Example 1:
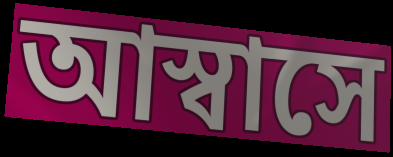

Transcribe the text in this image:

আস্বাসে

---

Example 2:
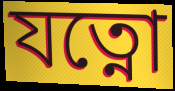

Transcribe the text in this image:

যত্নো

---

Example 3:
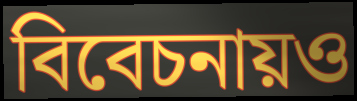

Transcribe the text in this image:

বিবেচনায়ও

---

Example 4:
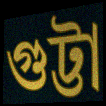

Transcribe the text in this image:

গুট্টা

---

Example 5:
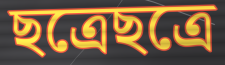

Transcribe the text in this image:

ছত্রেছত্রে